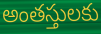
అంతస్తులకు